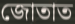
জোতাত